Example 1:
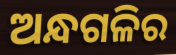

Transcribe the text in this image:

ଅନ୍ଧଗଳିର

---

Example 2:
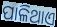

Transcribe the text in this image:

ପାଳିଥାଏ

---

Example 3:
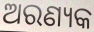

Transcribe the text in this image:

ଅରଣ୍ୟକ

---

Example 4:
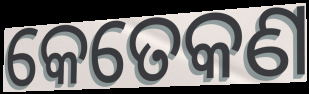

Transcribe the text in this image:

କେତେକଣ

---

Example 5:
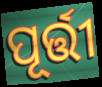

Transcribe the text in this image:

ପୂର୍ତ୍ତୀ